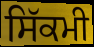
ਸਿੱਕਮੀ